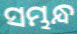
ସମ୍ଭନ୍ଧ